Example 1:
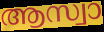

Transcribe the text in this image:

ആസ്വാ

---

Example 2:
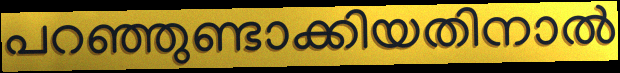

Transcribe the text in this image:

പറഞ്ഞുണ്ടാക്കിയതിനാൽ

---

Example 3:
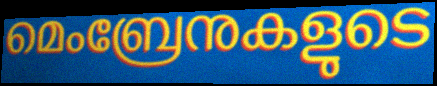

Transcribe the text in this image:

മെംബ്രേനുകളുടെ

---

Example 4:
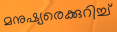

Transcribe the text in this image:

മനുഷ്യരെക്കുറിച്ച്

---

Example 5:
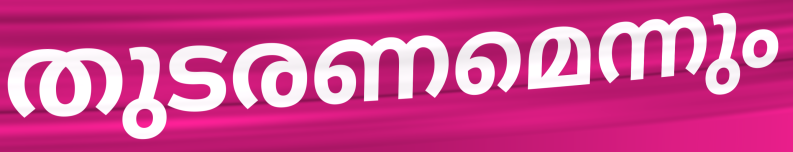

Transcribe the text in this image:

തുടരണമെന്നും